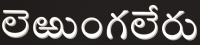
లెఱుంగలేరు